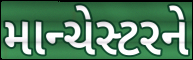
માન્ચેસ્ટરને